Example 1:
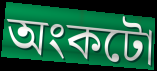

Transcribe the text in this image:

অংকটো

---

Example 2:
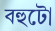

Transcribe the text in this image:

বহুটো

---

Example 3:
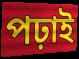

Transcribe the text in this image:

পঢ়াই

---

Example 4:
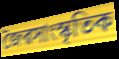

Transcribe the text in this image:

জৈৱসাংস্কৃতিক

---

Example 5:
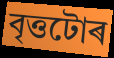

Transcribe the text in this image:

বৃত্তটোৰ